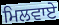
ਮਿਲਵਾਏ